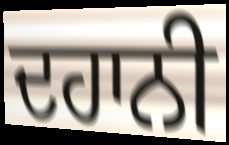
ਦਹਾਨੀ